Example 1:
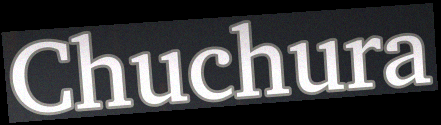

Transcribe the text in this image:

Chuchura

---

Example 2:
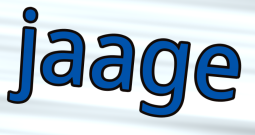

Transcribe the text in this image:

jaage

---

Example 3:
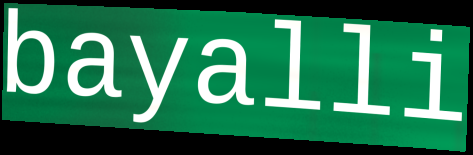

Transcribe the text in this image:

bayalli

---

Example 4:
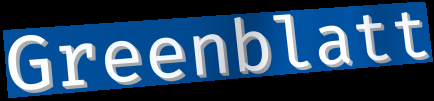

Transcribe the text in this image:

Greenblatt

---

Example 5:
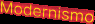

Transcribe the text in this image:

Modernismo